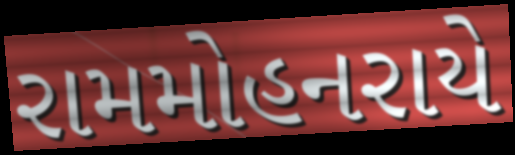
રામમોહનરાયે